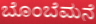
ಬೊಂಬೆಮನೆ